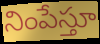
నింపేస్తూ